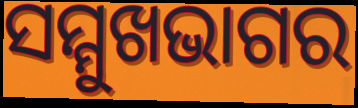
ସମ୍ମୁଖଭାଗର